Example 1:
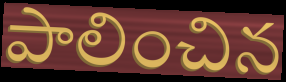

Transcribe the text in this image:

పాలించిన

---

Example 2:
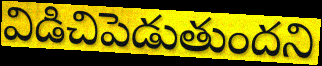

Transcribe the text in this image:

విడిచిపెడుతుందని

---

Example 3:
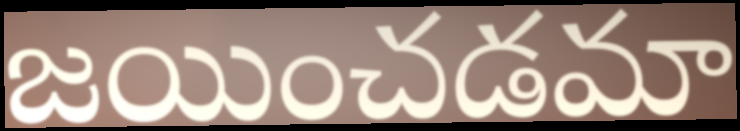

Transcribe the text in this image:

జయించడమా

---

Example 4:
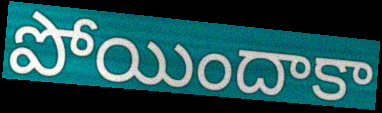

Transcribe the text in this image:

పోయిందాకా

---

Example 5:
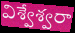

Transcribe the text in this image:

విశ్వేశ్వరా